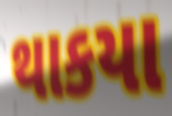
થાકયા